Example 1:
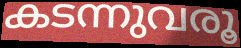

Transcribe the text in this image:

കടന്നുവരൂ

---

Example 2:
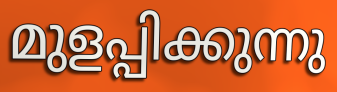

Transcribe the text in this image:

മുളപ്പിക്കുന്നു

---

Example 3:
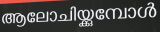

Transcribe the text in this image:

ആലോചിയ്ക്കുമ്പോൾ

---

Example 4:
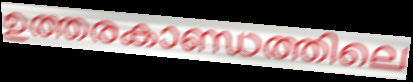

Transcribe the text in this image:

ഉത്തരകാണ്ഡത്തിലെ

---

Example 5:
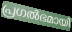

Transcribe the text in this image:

പ്രഗൽഭമായി